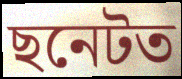
ছনেটত